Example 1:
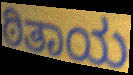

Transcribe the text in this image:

ಠಿತಾಯ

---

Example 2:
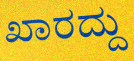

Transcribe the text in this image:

ಖಾರದ್ದು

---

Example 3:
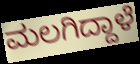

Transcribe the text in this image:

ಮಲಗಿದ್ದಾಳೆ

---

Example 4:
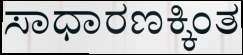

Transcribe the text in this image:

ಸಾಧಾರಣಕ್ಕಿಂತ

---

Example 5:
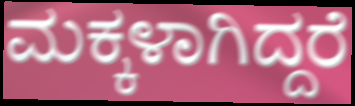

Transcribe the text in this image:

ಮಕ್ಕಳಾಗಿದ್ದರೆ